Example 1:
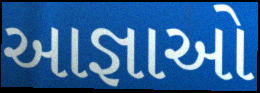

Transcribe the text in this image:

આજ્ઞાઓ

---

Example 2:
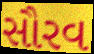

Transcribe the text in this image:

સૌરવ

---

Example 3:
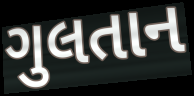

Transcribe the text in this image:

ગુલતાન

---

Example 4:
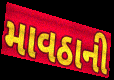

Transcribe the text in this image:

માવઠાની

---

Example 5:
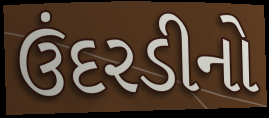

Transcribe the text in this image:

ઉંદરડીનો